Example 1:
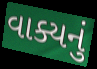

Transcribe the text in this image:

વાક્યનું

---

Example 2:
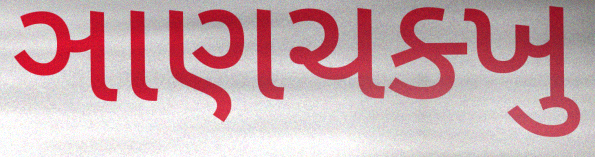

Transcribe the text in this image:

ઞાણચક્ખુ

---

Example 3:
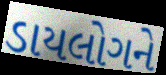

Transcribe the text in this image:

ડાયલોગને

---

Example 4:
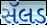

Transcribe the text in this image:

સૅલડ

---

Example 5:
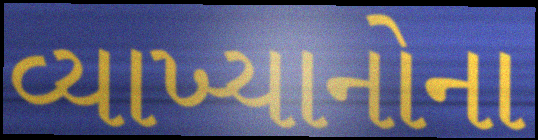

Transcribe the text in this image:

વ્યાખ્યાનોના